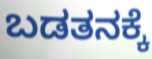
ಬಡತನಕ್ಕೆ